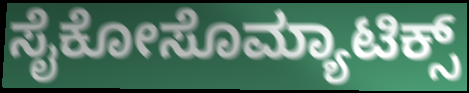
ಸೈಕೋಸೊಮ್ಯಾಟಿಕ್ಸ್